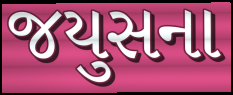
જયુસના